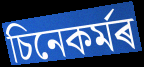
চিনেকৰ্মৰ